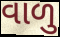
વાળુ